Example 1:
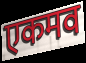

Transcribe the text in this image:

एकमव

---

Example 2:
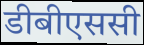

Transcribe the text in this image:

डीबीएससी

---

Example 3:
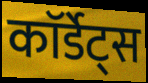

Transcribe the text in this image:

कॉर्डेट्स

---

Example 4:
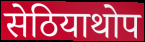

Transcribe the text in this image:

सेठियाथोप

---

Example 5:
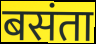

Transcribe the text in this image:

बसंता